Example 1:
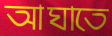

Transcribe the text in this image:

আঘাতে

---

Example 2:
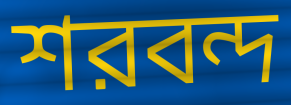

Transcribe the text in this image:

শরবন্দ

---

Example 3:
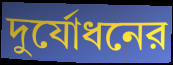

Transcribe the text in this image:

দুর্যোধনের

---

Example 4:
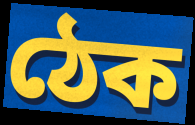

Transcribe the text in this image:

ঠেক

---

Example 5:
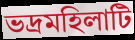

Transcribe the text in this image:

ভদ্রমহিলাটি